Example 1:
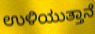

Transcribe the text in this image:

ಉಳಿಯುತ್ತಾನೆ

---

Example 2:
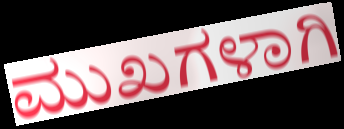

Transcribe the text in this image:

ಮುಖಗಳಾಗಿ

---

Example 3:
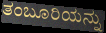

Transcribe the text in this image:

ತಂಬೂರಿಯನ್ನು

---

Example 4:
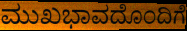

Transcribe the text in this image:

ಮುಖಭಾವದೊಂದಿಗೆ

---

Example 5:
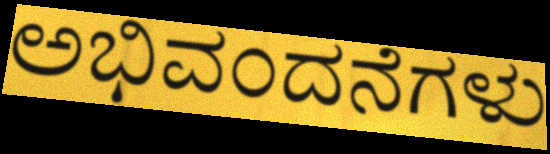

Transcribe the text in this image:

ಅಭಿವಂದನೆಗಳು